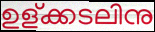
ഉള്ക്കടലിനു